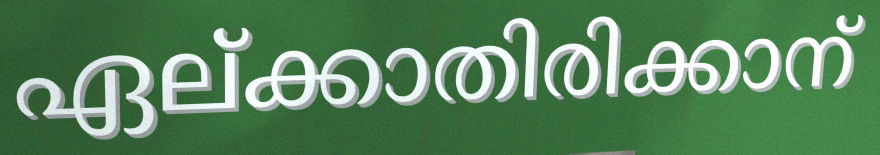
ഏല്ക്കാതിരിക്കാന്